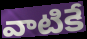
వాటికే